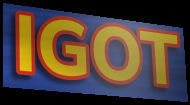
IGOT